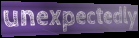
unexpectedly